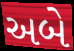
અબે